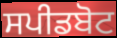
ਸਪੀਡਬੋਟ